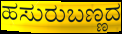
ಹಸುರುಬಣ್ಣದ